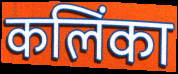
कलिंका